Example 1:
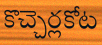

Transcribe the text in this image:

కొచ్చెర్లకోట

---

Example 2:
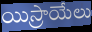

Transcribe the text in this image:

యిస్రాయేలు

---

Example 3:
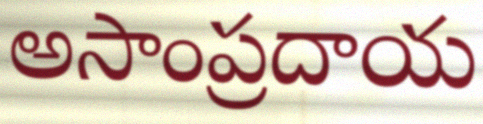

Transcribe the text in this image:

అసాంప్రదాయ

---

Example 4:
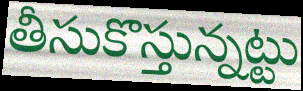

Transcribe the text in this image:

తీసుకొస్తున్నట్టు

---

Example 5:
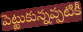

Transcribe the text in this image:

పెట్టుకున్నప్పటికీ